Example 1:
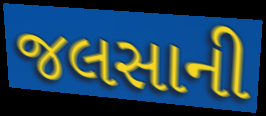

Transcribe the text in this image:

જલસાની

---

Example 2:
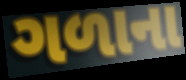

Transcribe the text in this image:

ગળાના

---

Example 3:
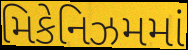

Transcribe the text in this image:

મિકેનિઝમમાં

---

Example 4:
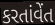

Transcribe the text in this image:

કરતાંવેંત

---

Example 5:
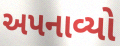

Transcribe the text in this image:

અપનાવ્યો